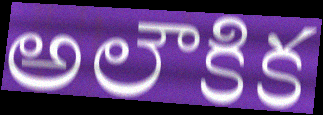
అలౌకిక